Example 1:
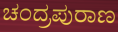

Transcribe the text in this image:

ಚಂದ್ರಪುರಾಣ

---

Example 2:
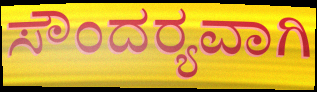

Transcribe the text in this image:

ಸೌಂದರ‍್ಯವಾಗಿ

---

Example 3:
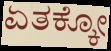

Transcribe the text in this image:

ಏತಕ್ಕೋ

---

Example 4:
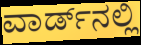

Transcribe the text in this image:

ವಾರ್ಡ್‌ನಲ್ಲಿ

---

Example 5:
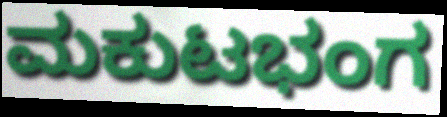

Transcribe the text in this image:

ಮಕುಟಭಂಗ